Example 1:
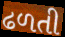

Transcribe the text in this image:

ઢળતી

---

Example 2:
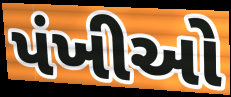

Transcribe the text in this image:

પંખીઓ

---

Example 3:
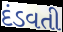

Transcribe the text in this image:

દંડવતી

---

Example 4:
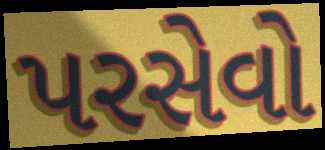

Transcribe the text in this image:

પરસેવો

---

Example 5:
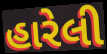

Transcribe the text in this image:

હારેલી